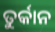
ତୁର୍କାନ